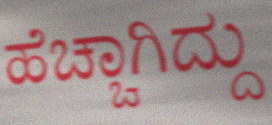
ಹೆಚ್ಚಾಗಿದ್ದು